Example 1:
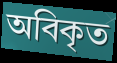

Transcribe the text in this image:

অবিকৃত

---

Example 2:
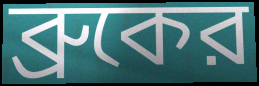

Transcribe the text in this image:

ব্রুকের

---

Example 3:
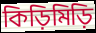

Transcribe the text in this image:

কিড়িমিড়ি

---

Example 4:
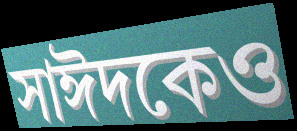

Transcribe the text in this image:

সাঈদকেও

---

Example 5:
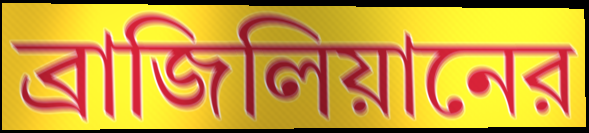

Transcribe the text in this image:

ব্রাজিলিয়ানের